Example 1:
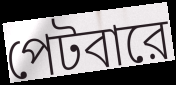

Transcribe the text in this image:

পেটবারে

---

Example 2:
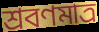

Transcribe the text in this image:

শ্রবণমাত্র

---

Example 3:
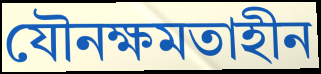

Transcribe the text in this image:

যৌনক্ষমতাহীন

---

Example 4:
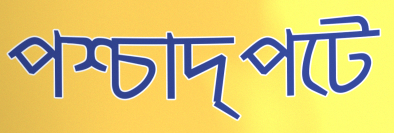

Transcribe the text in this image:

পশ্চাদ্‌পটে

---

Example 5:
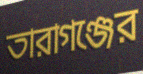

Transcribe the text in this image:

তারাগঞ্জের